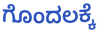
ಗೊಂದಲಕ್ಕೆ